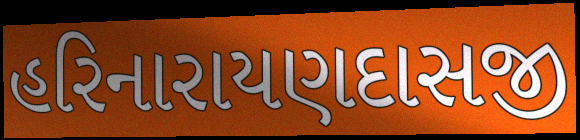
હરિનારાયણદાસજી